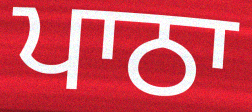
ਪਾਠਾ